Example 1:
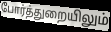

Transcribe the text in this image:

போர்த்துறையிலும்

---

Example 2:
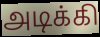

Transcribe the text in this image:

அடிக்கி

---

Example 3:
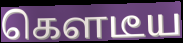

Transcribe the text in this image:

கௌடீய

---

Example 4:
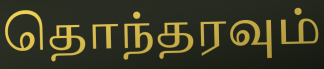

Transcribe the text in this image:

தொந்தரவும்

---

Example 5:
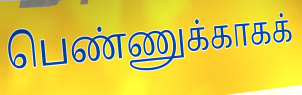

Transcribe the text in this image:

பெண்ணுக்காகக்